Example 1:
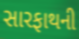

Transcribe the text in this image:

સારફાથની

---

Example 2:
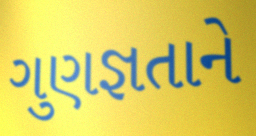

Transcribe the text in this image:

ગુણજ્ઞતાને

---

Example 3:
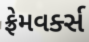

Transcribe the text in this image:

ફ્રેમવર્ક્સ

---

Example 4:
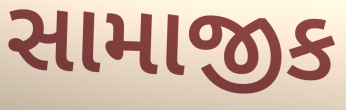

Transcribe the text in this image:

સામાજીક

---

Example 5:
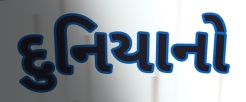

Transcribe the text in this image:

દુનિયાનો